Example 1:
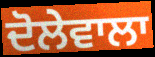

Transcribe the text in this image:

ਦੋਲੇਵਾਲਾ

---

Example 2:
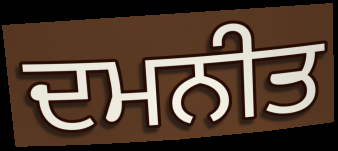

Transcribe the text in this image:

ਦਮਨੀਤ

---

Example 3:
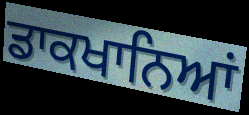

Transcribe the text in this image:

ਡਾਕਖਾਨਿਆਂ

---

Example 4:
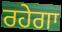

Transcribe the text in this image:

ਰਹੇਗਾ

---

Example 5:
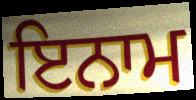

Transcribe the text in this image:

ਇਨਾਮ